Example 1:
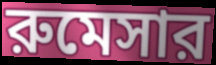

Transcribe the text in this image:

রুমেসার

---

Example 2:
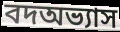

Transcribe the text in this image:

বদঅভ্যাস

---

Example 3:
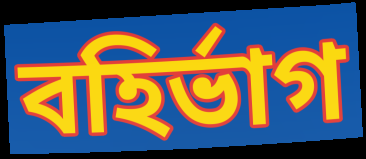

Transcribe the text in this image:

বহির্ভাগ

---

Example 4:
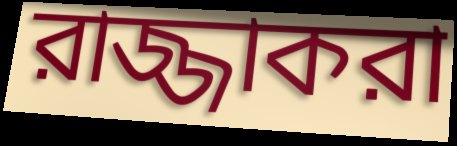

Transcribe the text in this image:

রাজ্জাকরা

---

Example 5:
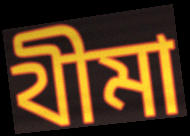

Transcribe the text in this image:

থীমা